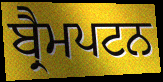
ਬ੍ਰੈਮਪਟਨ